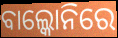
ବାଲ୍କୋନିରେ